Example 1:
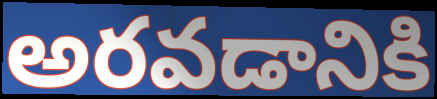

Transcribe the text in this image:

అరవడానికి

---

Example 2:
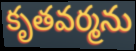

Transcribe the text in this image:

కృతవర్మను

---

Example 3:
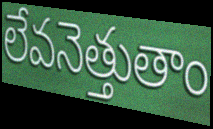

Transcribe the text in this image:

లేవనెత్తుతాం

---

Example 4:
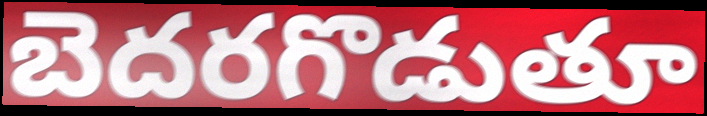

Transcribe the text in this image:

బెదరగొడుతూ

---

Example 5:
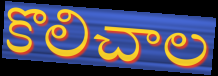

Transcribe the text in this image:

కొలిచాల